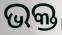
ଭକ୍ତ